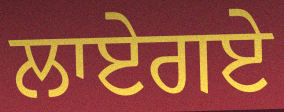
ਲਾਏਗਏ